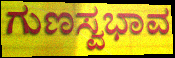
ಗುಣಸ್ವಭಾವ